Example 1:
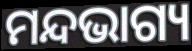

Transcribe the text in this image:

ମନ୍ଦଭାଗ୍ୟ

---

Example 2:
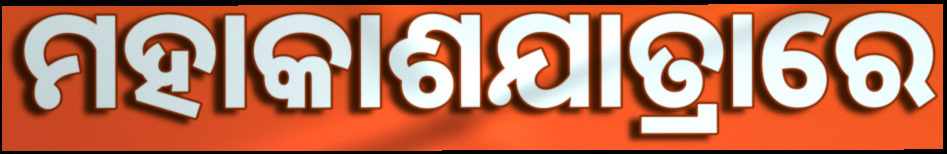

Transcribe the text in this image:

ମହାକାଶଯାତ୍ରାରେ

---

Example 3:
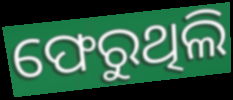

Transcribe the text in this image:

ଫେରୁଥିଲି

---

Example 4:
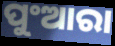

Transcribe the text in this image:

ପୁଂଆରା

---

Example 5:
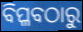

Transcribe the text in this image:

ବିପ୍ଳବଠାରୁ